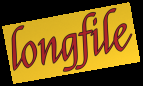
longfile